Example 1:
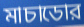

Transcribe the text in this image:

মাচাডোর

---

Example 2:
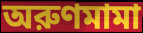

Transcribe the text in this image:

অরুণমামা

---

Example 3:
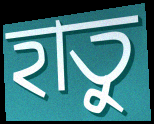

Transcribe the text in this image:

হাতু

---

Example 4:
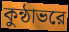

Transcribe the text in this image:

কুন্ঠাভরে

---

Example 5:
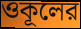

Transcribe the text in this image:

ওকূলের